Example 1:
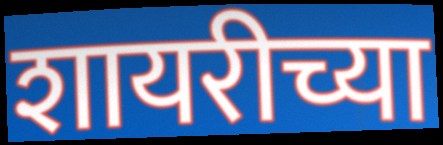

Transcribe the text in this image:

शायरीच्या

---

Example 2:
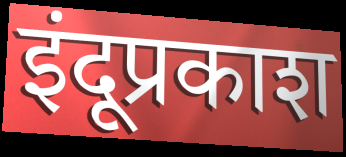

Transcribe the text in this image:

इंदूप्रकाश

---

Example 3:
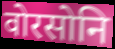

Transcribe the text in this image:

वोरसोनि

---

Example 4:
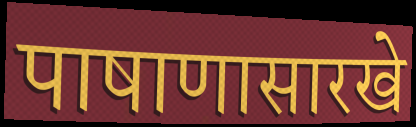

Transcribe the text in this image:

पाषाणासारखे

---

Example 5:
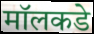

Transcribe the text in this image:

मॉलकडे